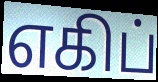
எகிப்